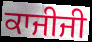
ਕਾਜੀਜੀ